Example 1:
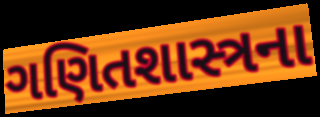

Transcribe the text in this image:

ગણિતશાસ્ત્રના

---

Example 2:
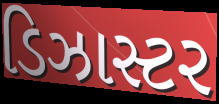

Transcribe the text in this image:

ડિઝાસ્ટર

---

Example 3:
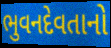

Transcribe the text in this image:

ભુવનદેવતાનો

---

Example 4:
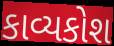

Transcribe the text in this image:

કાવ્યકોશ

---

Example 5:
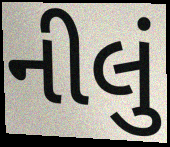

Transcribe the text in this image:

નીલું